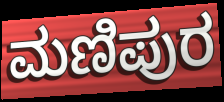
ಮಣಿಪುರ